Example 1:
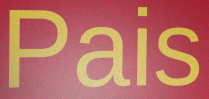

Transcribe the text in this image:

Pais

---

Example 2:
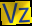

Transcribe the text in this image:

Vz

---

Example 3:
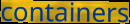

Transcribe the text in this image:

containers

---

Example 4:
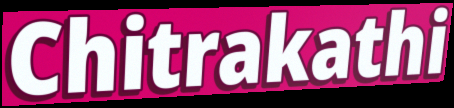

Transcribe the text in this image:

Chitrakathi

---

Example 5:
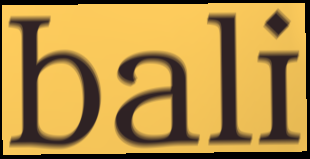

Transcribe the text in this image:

bali